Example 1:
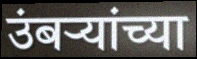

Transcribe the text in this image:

उंबऱ्यांच्या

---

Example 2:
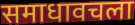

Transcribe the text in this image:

समाधावचला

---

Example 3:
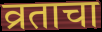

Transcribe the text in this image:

व्रताचा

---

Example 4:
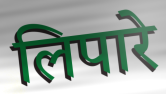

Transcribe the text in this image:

लिपारे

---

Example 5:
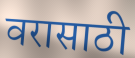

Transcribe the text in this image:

वरासाठी